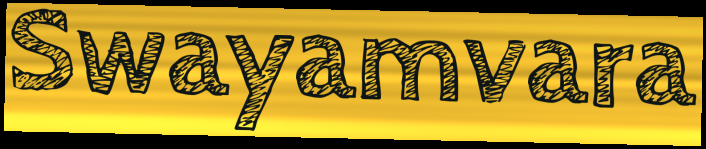
Swayamvara